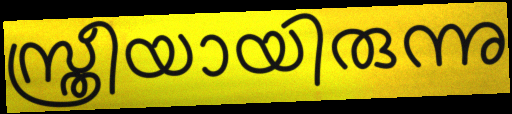
സ്ത്രീയായിരുന്നു